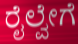
ರೈಲ್ವೇಗೆ